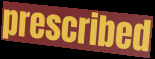
prescribed